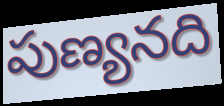
పుణ్యనది